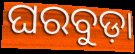
ଘରବୁଡ଼ା